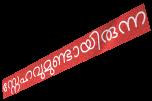
സ്നേഹവുമുണ്ടായിരുന്ന